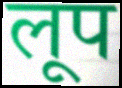
लूप